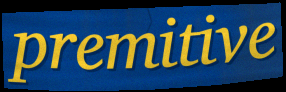
premitive